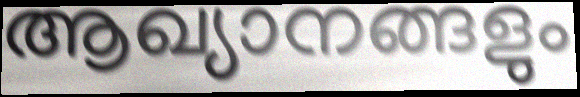
ആഖ്യാനങ്ങളും